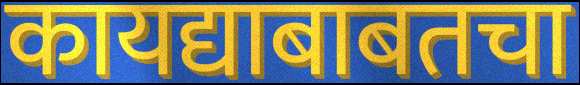
कायद्याबाबतचा